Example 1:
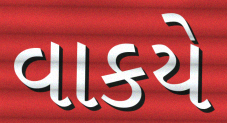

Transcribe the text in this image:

વાકયે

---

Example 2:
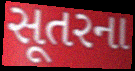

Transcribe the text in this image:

સૂતરના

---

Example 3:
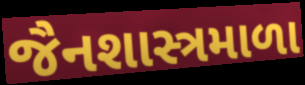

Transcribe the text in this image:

જૈનશાસ્ત્રમાળા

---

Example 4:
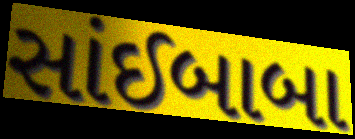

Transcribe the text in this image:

સાંઈબાબા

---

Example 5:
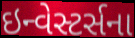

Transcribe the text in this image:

ઇન્વેસ્ટર્સના